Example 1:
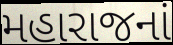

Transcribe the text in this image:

મહારાજનાં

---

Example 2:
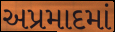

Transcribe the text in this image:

અપ્રમાદમાં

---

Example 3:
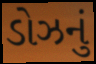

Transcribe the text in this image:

ડોઝનું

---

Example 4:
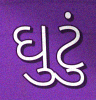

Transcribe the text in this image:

ઘુટું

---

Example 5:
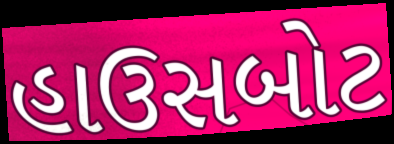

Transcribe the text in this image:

હાઉસબોટ